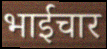
भाईचार